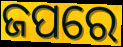
ଜପରେ